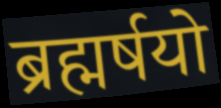
ब्रह्मर्षयो